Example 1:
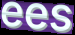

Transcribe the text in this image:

ees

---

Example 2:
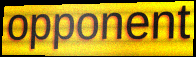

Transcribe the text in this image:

opponent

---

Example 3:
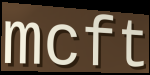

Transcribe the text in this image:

mcft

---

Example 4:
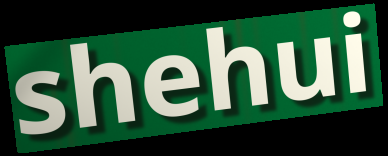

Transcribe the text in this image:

shehui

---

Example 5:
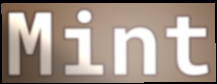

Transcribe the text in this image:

Mint